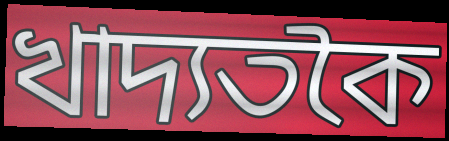
খাদ্যতকৈ